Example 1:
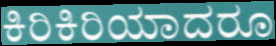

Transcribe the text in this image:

ಕಿರಿಕಿರಿಯಾದರೂ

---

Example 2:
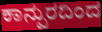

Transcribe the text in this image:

ಕಾನ್ಪುರದಿಂದ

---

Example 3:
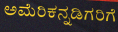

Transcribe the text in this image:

ಅಮೆರಿಕನ್ನಡಿಗರಿಗೆ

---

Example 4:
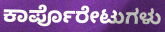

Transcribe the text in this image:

ಕಾರ್ಪೊರೇಟುಗಳು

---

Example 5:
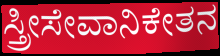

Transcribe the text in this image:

ಸ್ತ್ರೀಸೇವಾನಿಕೇತನ